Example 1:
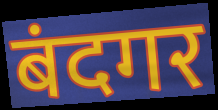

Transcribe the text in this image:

बंदगर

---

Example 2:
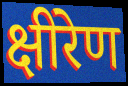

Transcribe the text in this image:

क्षीरेण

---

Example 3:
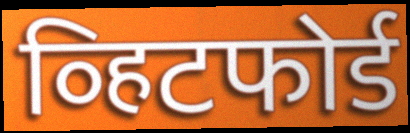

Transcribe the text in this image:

व्हिटफोर्ड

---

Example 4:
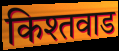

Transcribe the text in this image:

किश्तवाड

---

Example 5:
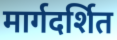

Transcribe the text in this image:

मार्गदर्शित